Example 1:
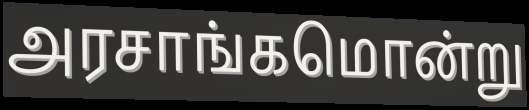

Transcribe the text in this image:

அரசாங்கமொன்று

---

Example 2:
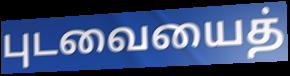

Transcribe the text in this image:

புடவையைத்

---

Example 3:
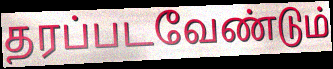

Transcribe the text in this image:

தரப்படவேண்டும்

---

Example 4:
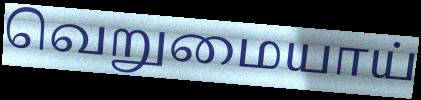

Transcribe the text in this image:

வெறுமையாய்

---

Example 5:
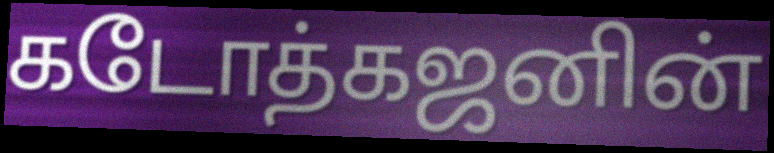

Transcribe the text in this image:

கடோத்கஜனின்